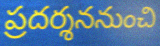
ప్రదర్శననుంచి